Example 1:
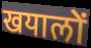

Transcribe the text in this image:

खयालों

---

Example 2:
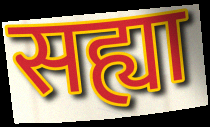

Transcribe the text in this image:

सह्या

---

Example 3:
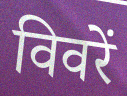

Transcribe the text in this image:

विवरें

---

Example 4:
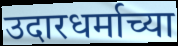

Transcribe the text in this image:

उदारधर्माच्या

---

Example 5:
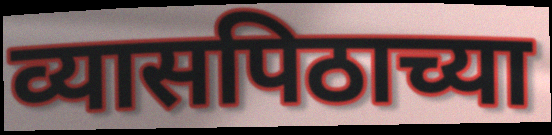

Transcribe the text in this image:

व्यासपिठाच्या